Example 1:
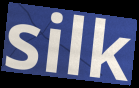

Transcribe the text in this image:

silk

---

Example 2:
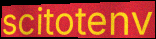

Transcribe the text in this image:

scitotenv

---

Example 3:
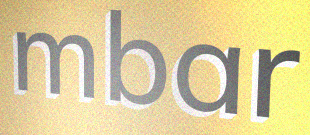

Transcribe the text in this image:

mbar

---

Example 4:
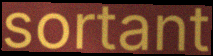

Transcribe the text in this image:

sortant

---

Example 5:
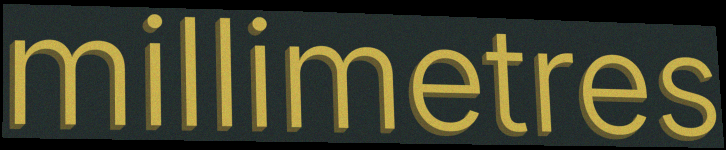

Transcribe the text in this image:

millimetres